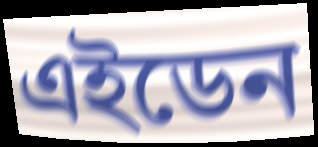
এইডেন